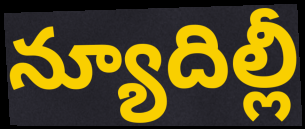
న్యూదిల్లీ